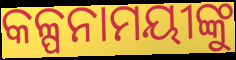
କଳ୍ପନାମୟୀଙ୍କୁ